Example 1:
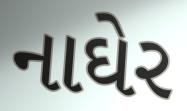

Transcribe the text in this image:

નાઘેર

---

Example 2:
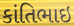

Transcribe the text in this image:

કાંતિભાઇ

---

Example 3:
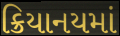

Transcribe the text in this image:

ક્રિયાનયમાં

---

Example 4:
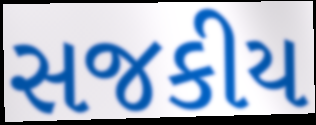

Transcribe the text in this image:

સજકીય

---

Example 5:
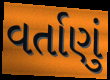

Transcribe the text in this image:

વર્તાણું